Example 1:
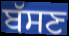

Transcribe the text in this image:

ਬੱਸਣ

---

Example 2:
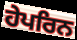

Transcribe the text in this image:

ਹੇਪਰਿਨ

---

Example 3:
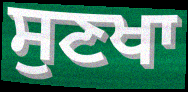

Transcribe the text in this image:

ਸੁਣਖਾ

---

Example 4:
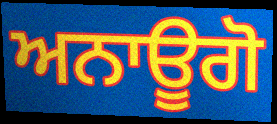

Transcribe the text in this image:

ਅਨਾਊਗੋ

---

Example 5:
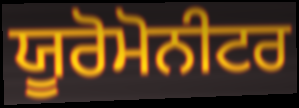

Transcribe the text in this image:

ਯੂਰੋਮੋਨੀਟਰ